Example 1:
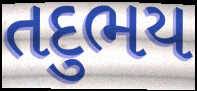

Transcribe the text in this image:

તદુભય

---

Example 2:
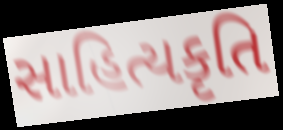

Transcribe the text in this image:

સાહિત્યકૃતિ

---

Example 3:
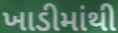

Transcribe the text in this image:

ખાડીમાંથી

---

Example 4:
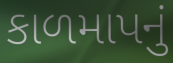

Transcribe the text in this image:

કાળમાપનું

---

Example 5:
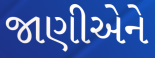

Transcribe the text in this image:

જાણીએને